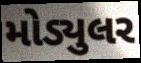
મોડ્યુલર